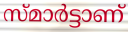
സ്മാർട്ടാണ്